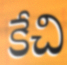
కేచి